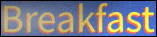
Breakfast